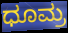
ಧೂಮ್ರ